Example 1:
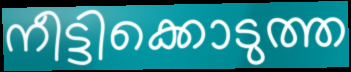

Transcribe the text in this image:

നീട്ടിക്കൊടുത്ത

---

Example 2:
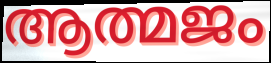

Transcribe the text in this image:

ആത്മജം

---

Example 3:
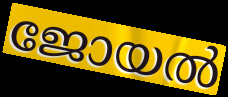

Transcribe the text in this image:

ജോയൽ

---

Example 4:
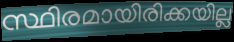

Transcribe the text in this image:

സ്ഥിരമായിരിക്കയില്ല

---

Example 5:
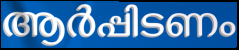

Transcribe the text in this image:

ആർപ്പിടണം